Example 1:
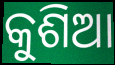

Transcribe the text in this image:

କୁଶିଆ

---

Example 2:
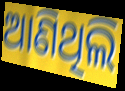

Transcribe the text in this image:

ଆଣିଥିଲି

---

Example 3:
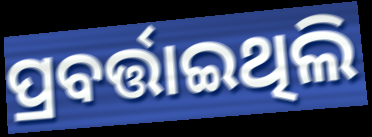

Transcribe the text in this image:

ପ୍ରବର୍ତ୍ତାଇଥିଲି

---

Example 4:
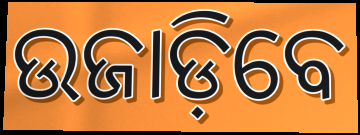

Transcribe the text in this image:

ଉଜାଡ଼ିବେ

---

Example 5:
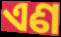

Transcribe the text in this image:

ଏଣ